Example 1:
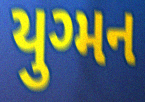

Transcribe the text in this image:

યુગ્મન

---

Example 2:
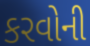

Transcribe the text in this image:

કરવોની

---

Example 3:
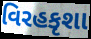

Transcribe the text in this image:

વિરહકૃશા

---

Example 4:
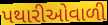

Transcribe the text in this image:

પથારીઓવાળી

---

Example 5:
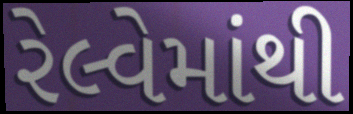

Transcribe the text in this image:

રેલ્વેમાંથી